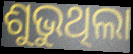
ଶୁଭୁଥିଲା